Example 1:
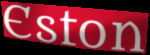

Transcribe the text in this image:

Eston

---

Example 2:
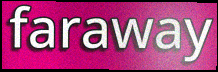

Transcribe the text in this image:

faraway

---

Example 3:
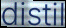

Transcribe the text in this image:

distil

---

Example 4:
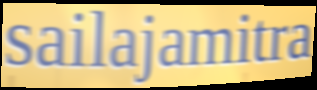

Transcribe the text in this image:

sailajamitra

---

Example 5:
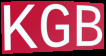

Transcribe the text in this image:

KGB